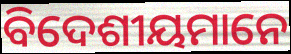
ବିଦେଶୀୟମାନେ